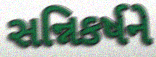
સન્નિકર્ષને